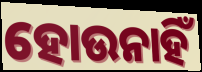
ହୋଉନାହିଁ